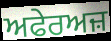
ਅਫੇਰਅਜ਼